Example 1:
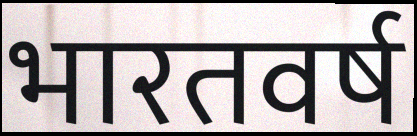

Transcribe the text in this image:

भारतवर्ष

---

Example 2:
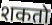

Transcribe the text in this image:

शकतो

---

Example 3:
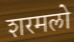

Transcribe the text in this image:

शरमलो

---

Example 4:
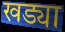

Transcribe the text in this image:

खड्या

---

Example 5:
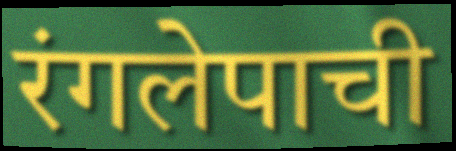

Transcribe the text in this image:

रंगलेपाची